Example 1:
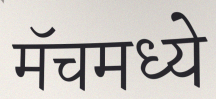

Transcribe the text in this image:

मॅचमध्ये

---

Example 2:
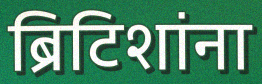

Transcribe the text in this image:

ब्रिटिशांना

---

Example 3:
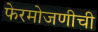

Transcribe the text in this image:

फेरमोजणीची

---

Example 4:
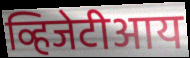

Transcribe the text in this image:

व्हिजेटीआय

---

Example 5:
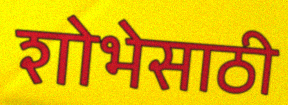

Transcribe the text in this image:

शोभेसाठी